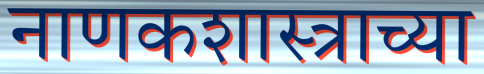
नाणकशास्त्राच्या